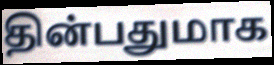
தின்பதுமாக